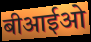
बीआईओ